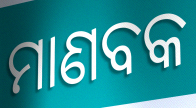
ମାଣବକ